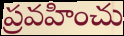
ప్రవహించు